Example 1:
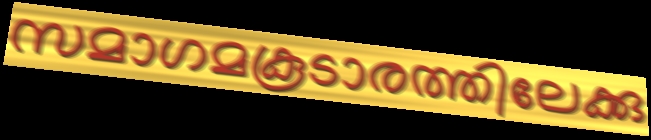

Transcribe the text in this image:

സമാഗമകൂടാരത്തിലേക്കു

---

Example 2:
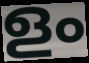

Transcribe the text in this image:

ളം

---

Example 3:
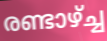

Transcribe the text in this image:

രണ്ടാഴ്ച്ച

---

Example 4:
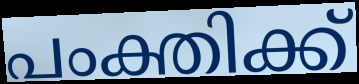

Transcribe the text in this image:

പംക്തിക്ക്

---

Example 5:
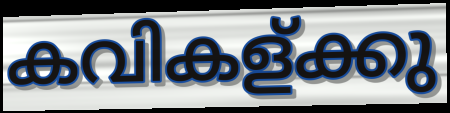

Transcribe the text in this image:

കവികള്ക്കു